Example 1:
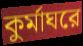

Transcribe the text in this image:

কুর্মাঘরে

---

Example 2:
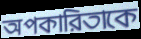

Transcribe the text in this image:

অপকারিতাকে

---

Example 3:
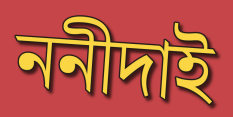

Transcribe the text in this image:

ননীদাই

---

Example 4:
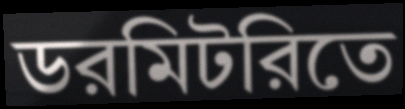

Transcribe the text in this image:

ডরমিটরিতে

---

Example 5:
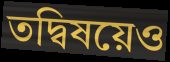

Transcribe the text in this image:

তদ্বিষয়েও